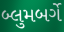
બ્લુમબર્ગે